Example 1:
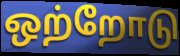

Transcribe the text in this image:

ஒற்றோடு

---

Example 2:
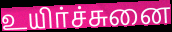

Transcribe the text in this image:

உயிர்ச்சுனை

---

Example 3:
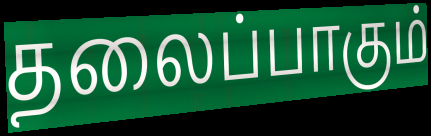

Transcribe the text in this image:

தலைப்பாகும்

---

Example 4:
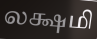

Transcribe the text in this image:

லக்ஷமி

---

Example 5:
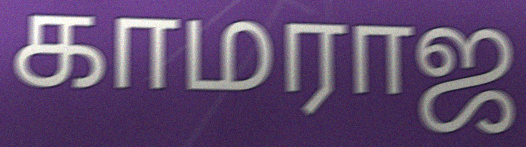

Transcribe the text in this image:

காமராஜ